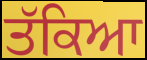
ਤੱਕਿਆ